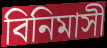
বিনিমাসী